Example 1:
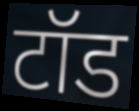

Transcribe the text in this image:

टॉड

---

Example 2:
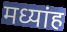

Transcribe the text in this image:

मध्यांह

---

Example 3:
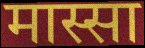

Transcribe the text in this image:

मास्सा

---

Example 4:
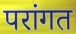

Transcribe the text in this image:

परांगत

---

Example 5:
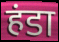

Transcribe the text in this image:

हंडा